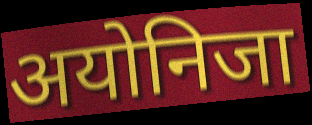
अयोनिजा